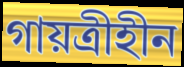
গায়ত্রীহীন